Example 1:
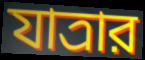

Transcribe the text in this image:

যাত্রার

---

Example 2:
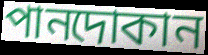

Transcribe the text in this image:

পানদোকান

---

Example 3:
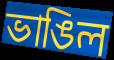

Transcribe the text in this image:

ভাঙিল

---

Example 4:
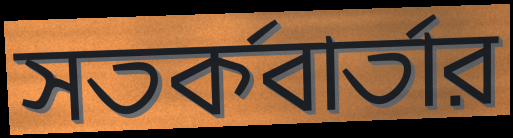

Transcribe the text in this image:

সতর্কবার্তার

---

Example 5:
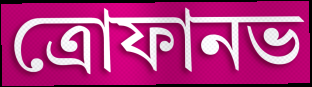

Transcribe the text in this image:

ত্রোফানভ